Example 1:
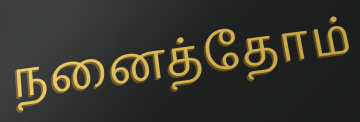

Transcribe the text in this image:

நனைத்தோம்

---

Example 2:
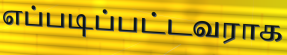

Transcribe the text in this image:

எப்படிப்பட்டவராக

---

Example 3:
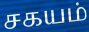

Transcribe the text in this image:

சகயம்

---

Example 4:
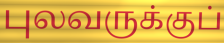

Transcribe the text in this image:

புலவருக்குப்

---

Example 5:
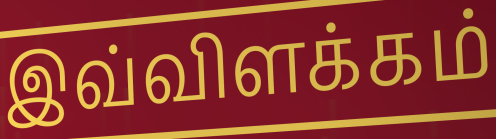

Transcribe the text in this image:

இவ்விளக்கம்